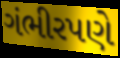
ગંભીરપણે